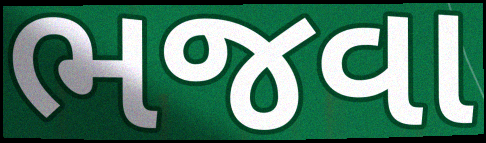
ભજવા